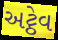
અટ્ઠેવ